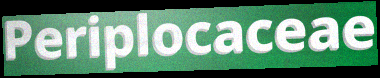
Periplocaceae